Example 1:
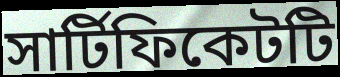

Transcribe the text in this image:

সার্টিফিকেটটি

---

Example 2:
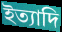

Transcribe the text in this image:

ইত্যাদি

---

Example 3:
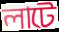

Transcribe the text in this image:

লাটে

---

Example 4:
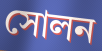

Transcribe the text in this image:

সোলন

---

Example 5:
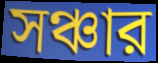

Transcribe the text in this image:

সঞ্চার